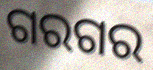
ଗରଗର